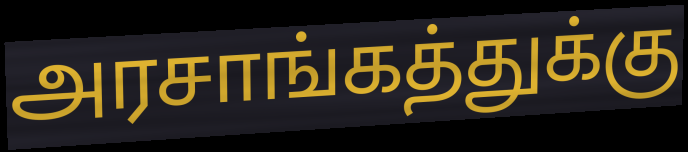
அரசாங்கத்துக்கு